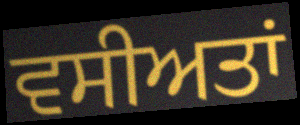
ਵਸੀਅਤਾਂ